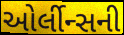
ઓર્લીન્સની